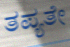
ತಪ್ಯತೇ